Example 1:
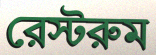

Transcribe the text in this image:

রেস্টরুম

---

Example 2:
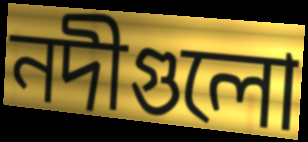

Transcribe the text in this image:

নদীগুলো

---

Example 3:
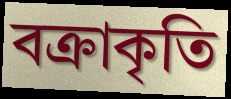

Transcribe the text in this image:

বক্রাকৃতি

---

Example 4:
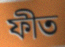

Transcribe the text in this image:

ফীত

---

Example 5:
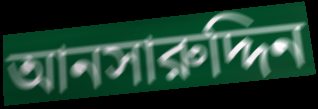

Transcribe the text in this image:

আনসারুদ্দিন